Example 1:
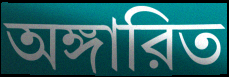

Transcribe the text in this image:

অঙ্গারিত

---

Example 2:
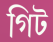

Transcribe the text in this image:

গিট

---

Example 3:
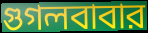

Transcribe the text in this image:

গুগলবাবার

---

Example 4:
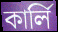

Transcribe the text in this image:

কার্লি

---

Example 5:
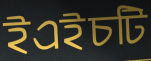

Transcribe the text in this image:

ইএইচটি